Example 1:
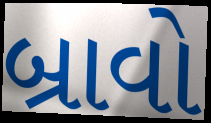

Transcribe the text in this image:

બ્રાવો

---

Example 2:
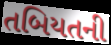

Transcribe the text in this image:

તબિયતની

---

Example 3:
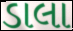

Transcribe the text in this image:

ડાલા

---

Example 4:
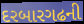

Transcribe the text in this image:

દરબારગઢની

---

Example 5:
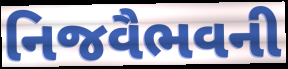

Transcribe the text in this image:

નિજવૈભવની